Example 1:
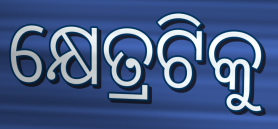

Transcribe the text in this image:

କ୍ଷେତ୍ରଟିକୁ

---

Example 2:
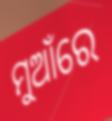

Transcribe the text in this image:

ମୁଆଁରେ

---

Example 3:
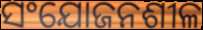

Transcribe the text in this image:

ସଂଯୋଜନଶୀଳ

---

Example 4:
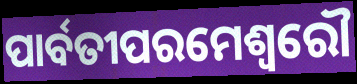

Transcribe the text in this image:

ପାର୍ବତୀପରମେଶ୍ଵରୌ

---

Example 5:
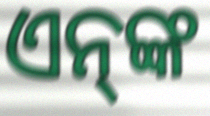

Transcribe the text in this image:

ଏନ୍‌ଙ୍କ